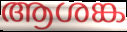
ആശങ്ക